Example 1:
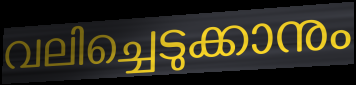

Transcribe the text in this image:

വലിച്ചെടുക്കാനും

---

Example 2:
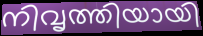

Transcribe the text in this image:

നിവൃത്തിയായി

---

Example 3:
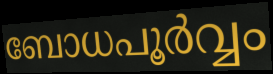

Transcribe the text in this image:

ബോധപൂർവ്വം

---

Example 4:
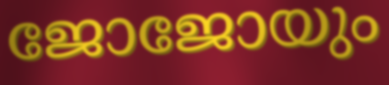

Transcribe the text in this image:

ജോജോയും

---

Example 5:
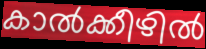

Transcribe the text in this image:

കാൽക്കീഴിൽ